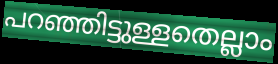
പറഞ്ഞിട്ടുള്ളതെല്ലാം